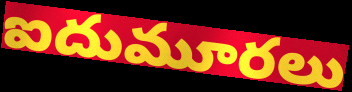
ఐదుమూరలు